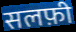
सलफ़ी